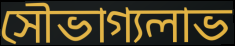
সৌভাগ্যলাভ